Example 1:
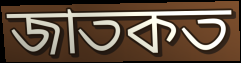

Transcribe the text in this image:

জাতকত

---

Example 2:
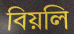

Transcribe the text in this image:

বিয়লি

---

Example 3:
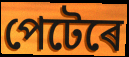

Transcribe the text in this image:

পেটেৰে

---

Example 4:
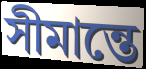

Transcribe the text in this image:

সীমান্তে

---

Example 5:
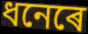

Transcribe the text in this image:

ধনেৰে